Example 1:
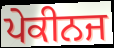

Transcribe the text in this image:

ਪੇਕੀਨਜ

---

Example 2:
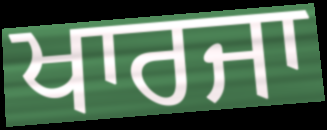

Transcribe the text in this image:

ਖਾਰਜਾ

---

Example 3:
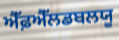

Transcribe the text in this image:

ਐੱਫ਼ਐੱਲਡਬਲਯੂ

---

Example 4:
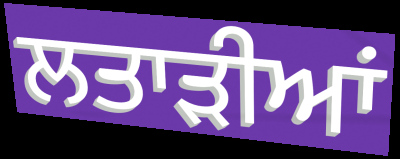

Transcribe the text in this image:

ਲਤਾੜੀਆਂ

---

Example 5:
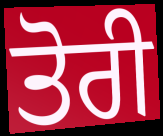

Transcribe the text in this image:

ਤੋਰੀ